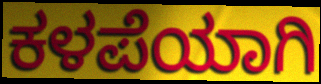
ಕಳಪೆಯಾಗಿ